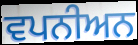
ਵਪਨੀਅਨ